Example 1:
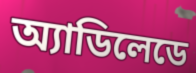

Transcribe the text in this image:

অ্যাডিলেডে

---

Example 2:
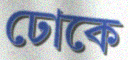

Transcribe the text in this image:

ঢোকে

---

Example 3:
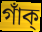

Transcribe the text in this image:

গাঁক্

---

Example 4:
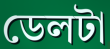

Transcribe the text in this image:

ডেলটা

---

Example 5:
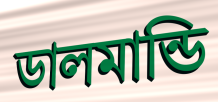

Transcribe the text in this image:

ডালমান্ডি